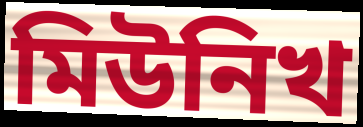
মিউনিখ